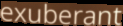
exuberant